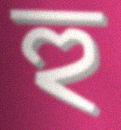
হু